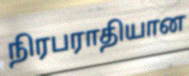
நிரபராதியான